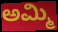
ಅಮ್ಮಿ